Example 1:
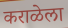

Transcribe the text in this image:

कराळेला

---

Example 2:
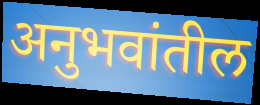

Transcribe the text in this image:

अनुभवांतील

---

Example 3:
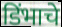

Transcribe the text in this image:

डिंभाचे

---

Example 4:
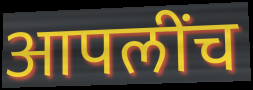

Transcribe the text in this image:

आपलींच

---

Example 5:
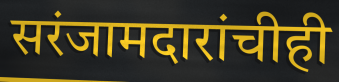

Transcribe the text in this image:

सरंजामदारांचीही